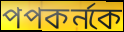
পপকর্নকে